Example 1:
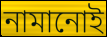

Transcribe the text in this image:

নামানোই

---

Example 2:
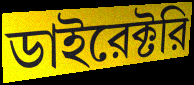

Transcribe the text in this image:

ডাইরেক্টরি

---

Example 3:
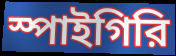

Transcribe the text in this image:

স্পাইগিরি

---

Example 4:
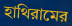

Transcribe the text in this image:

হাথিরামের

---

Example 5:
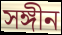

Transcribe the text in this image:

সঙ্গীন